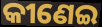
କୀଣେଇ